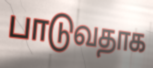
பாடுவதாக